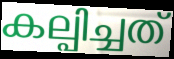
കല്പിച്ചത്